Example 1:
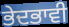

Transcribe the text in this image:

ਭੇਦਭਾਵੀ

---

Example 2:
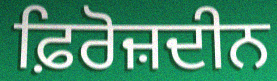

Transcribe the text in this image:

ਫ਼ਿਰੋਜ਼ਦੀਨ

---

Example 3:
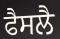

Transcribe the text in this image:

ਫੈਸਲੈ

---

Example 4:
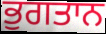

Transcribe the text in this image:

ਭੁਗਤਾਨ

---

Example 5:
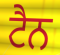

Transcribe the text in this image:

ਟੈਨ